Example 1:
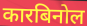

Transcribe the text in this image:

कारबिनोल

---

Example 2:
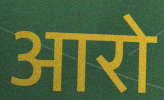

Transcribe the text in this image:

आरो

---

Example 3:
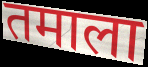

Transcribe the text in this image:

तमाला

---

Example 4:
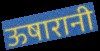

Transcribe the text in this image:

ऊषारानी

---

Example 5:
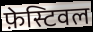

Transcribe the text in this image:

फ़ेस्टिवल